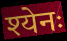
श्येनः